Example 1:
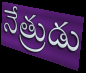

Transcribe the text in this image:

నేత్రుడు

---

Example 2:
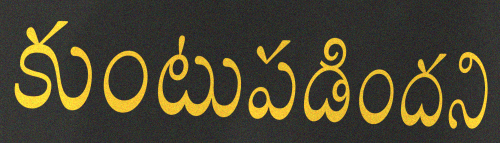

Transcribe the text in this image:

కుంటుపడిందని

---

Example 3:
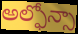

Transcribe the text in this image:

అల్ఫోన్సా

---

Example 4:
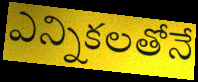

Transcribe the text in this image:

ఎన్నికలతోనే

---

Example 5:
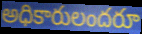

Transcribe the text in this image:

అధికారులందరూ